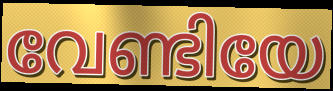
വേണ്ടിയേ